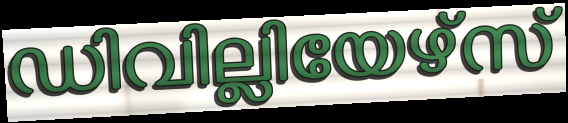
ഡിവില്ലിയേഴ്സ്